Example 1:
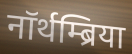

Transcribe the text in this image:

नॉर्थम्ब्रिया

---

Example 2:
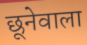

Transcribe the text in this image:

छूनेवाला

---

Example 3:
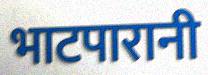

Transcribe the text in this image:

भाटपारानी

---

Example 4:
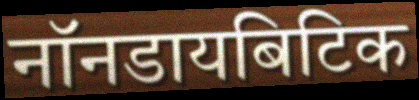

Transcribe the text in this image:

नॉनडायबिटिक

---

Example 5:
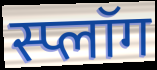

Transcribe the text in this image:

स्प्लॉग